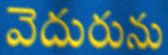
వెదురును